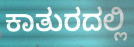
ಕಾತುರದಲ್ಲಿ